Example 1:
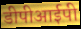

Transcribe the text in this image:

डीपीआईपी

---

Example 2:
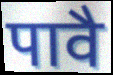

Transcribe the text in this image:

पावै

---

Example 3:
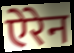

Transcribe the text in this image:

ऐरेन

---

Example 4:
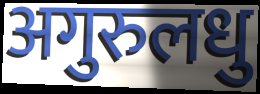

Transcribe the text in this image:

अगुरुलधु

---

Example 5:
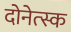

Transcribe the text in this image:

दोनेत्स्क